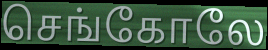
செங்கோலே